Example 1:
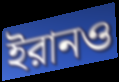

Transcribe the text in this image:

ইরানও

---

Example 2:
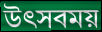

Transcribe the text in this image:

উৎসবময়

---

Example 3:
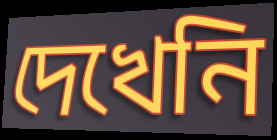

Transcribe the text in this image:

দেখেনি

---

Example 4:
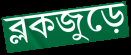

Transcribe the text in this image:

ব্লকজুড়ে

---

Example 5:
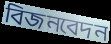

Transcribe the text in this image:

বিজনবেদন